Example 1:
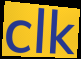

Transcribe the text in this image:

clk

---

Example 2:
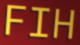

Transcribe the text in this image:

FIH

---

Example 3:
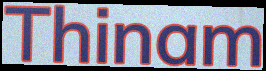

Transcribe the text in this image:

Thinam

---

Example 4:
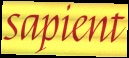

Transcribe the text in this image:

sapient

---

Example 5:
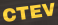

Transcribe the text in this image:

CTEV